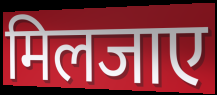
मिलजाए